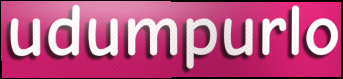
udumpurlo